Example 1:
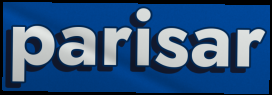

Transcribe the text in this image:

parisar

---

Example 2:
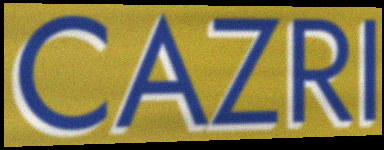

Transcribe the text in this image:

CAZRI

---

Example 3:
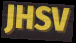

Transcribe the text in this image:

JHSV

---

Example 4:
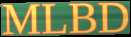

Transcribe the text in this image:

MLBD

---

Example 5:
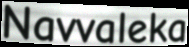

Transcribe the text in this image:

Navvaleka